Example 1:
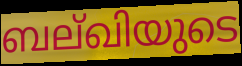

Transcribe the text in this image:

ബല്ഖിയുടെ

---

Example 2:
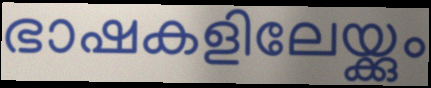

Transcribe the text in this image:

ഭാഷകളിലേയ്ക്കും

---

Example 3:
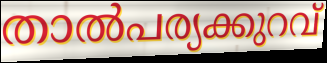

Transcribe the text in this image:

താൽപര്യക്കുറവ്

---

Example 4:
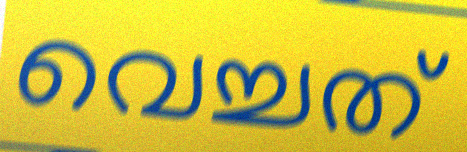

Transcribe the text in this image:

വെച്ചത്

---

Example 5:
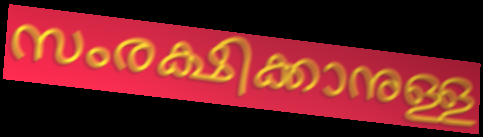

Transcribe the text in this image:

സംരക്ഷിക്കാനുള്ള